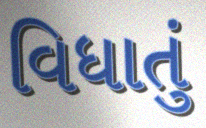
વિધાતું